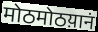
मोठमोठय़ानं